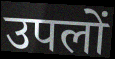
उपलों